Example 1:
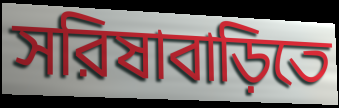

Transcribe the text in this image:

সরিষাবাড়িতে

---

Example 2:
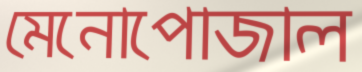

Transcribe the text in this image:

মেনোপোজাল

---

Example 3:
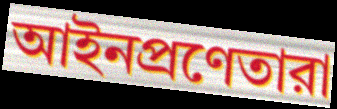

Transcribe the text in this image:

আইনপ্রণেতারা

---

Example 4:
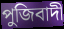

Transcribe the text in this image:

পুজিবাদী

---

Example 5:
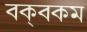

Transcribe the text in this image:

বক্‌বকম